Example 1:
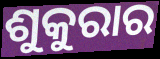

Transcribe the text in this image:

ଶୁକୁରାର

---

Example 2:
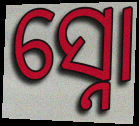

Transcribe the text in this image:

ସ୍ନୋ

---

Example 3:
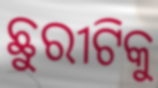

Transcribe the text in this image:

ଛୁରୀଟିକୁ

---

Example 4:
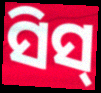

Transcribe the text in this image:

ସିସ୍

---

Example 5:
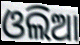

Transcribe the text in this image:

ଓଲିଆ